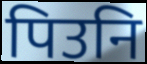
पिउनि